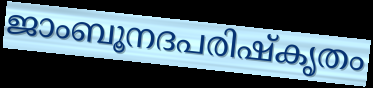
ജാംബൂനദപരിഷ്കൃതം